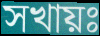
সখায়ঃ